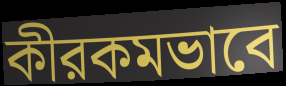
কীরকমভাবে